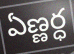
ఏణ్ణర్ధ